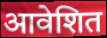
आवेशित